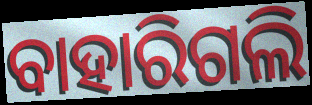
ବାହାରିଗଲି